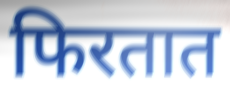
फिरतात